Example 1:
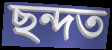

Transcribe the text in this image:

ছন্দত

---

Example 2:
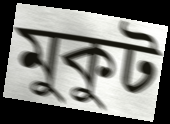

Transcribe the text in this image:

মুকুট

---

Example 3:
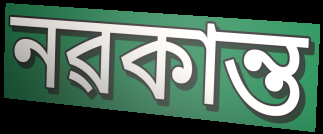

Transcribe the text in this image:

নৱকান্ত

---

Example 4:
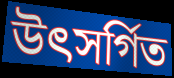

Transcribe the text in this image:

উৎসৰ্গিত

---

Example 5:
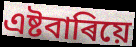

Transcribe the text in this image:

এষ্টবাৰিয়ে